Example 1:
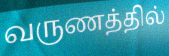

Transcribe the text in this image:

வருணத்தில்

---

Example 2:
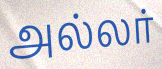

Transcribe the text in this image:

அல்லர்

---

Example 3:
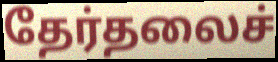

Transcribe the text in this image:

தேர்தலைச்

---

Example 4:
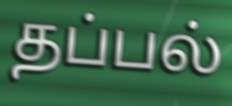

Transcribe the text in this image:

தப்பல்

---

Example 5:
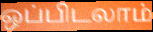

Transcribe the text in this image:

ஒப்பிடலாம்